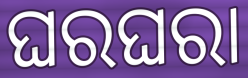
ଘରଘରା